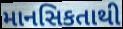
માનસિકતાથી